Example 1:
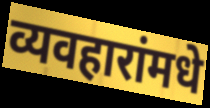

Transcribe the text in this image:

व्यवहारांमधे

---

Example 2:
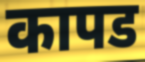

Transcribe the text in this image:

कापड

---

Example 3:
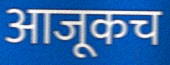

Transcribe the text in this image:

आजूकच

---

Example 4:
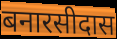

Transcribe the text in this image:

बनारसीदास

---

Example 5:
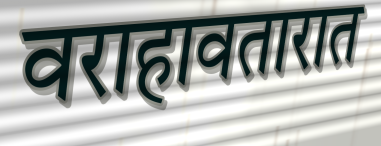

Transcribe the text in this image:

वराहावतारात